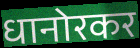
धानोरकर